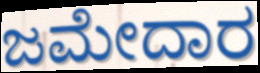
ಜಮೇದಾರ